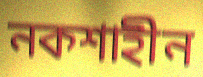
নকশাহীন